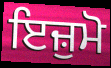
ਇਜ਼ੁਮੋ